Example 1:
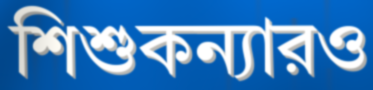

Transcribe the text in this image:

শিশুকন্যারও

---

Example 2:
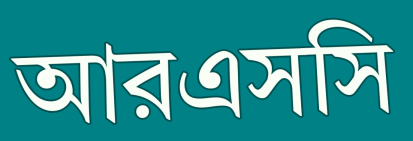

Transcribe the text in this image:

আরএসসি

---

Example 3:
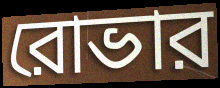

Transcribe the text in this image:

রোভার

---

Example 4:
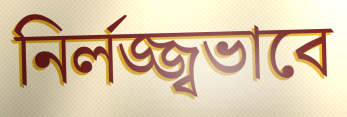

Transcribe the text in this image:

নির্লজ্জ্বভাবে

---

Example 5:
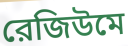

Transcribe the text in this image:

রেজিউমে